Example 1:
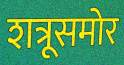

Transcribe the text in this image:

शत्रूसमोर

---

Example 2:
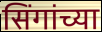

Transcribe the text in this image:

सिंगांच्या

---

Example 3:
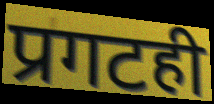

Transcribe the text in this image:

प्रगटही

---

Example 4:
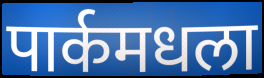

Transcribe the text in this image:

पार्कमधला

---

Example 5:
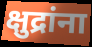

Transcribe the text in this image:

क्षुद्रांना